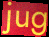
jug